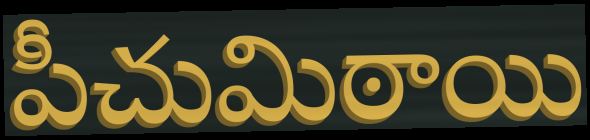
పీచుమిఠాయి